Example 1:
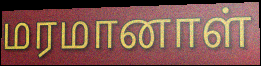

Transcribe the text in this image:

மரமானாள்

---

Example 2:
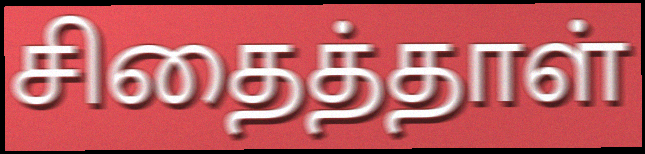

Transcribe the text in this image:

சிதைத்தாள்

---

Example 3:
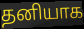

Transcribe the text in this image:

தனியாக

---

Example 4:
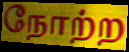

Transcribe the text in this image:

நோற்ற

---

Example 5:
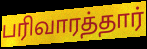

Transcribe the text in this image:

பரிவாரத்தார்